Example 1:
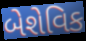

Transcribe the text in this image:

બેશેવિક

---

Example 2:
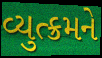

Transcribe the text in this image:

વ્યુત્ક્રમને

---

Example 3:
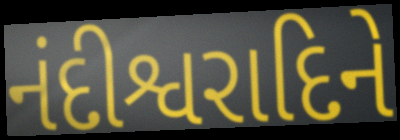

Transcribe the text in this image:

નંદીશ્વરાદિને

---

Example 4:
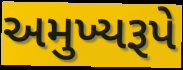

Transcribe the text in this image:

અમુખ્યરૂપે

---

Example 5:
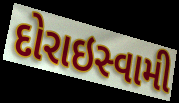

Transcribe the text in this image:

દોરાઇસ્વામી